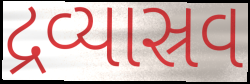
દ્રવ્યાસ્રવ